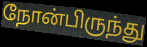
நோன்பிருந்து